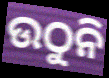
ଉଠୁନି